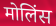
मोलिंस